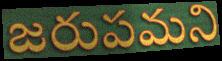
జరుపమని